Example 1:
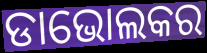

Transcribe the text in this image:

ଡାଭୋଲକର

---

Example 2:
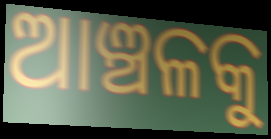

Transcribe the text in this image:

ଆଞ୍ଚଳକୁ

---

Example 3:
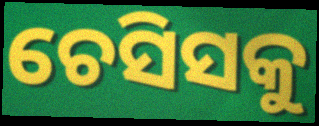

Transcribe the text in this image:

ଚେସିସକୁ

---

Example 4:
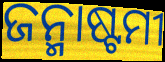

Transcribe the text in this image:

ଜନ୍ମାଷ୍ଟମୀ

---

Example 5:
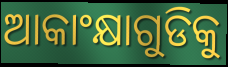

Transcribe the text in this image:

ଆକାଂକ୍ଷାଗୁଡିକୁ